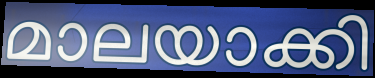
മാലയാക്കി